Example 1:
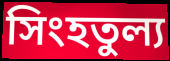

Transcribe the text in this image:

সিংহতুল্য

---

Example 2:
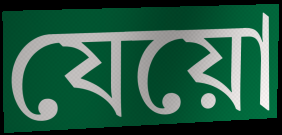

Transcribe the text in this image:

যেয়ো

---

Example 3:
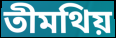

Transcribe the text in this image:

তীমথিয়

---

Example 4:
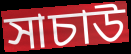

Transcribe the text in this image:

সাচাউ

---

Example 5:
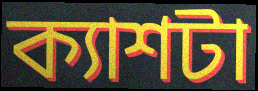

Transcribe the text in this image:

ক্যাশটা